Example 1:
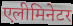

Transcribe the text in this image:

एलीमिनेटर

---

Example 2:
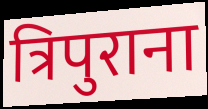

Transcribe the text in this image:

त्रिपुराना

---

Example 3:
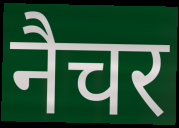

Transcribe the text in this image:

नैचर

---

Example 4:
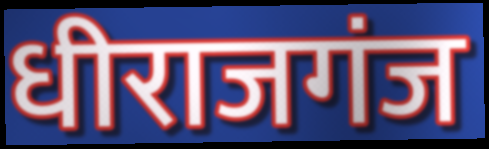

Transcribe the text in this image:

धीराजगंज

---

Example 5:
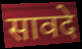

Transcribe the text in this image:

सावदे